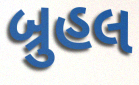
બ્રુહલ